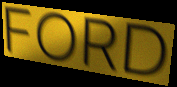
FORD